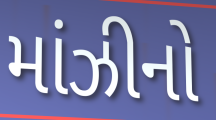
માંઝીનો